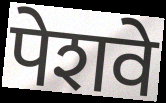
पेशवे